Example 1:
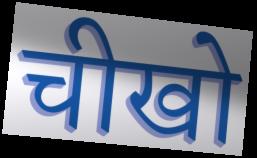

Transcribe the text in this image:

चीखो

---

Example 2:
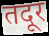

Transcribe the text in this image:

तदूर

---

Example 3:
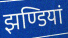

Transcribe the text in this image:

झण्डियां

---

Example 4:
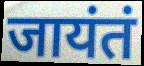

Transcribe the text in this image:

जायंतं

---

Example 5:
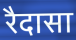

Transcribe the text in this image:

रैदासा